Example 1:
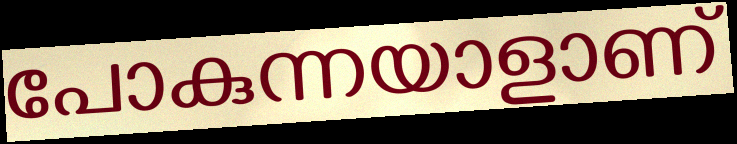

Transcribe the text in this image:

പോകുന്നയാളാണ്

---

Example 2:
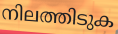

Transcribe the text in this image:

നിലത്തിടുക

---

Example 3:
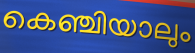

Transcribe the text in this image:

കെഞ്ചിയാലും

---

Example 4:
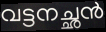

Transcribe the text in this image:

വട്ടനച്ഛൻ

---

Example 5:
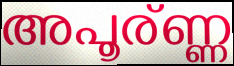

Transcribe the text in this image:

അപൂര്ണ്ണ